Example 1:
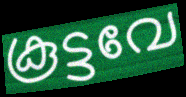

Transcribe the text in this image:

കൂട്ടവേ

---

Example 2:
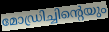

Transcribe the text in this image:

മോഡ്രിച്ചിന്റെയും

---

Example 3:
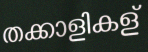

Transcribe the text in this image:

തക്കാളികള്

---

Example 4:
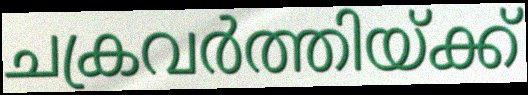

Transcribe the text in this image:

ചക്രവർത്തിയ്ക്ക്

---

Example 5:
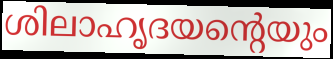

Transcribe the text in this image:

ശിലാഹൃദയന്റെയും